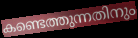
കണ്ടെത്തുന്നതിനും